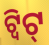
ଟ୍ୱିଟ୍